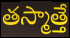
తస్మాత్తే